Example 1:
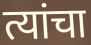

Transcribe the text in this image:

त्यांचा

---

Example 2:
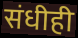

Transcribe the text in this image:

संधीही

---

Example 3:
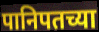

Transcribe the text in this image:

पानिपतच्या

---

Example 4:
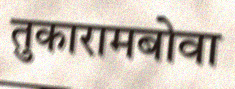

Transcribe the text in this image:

तुकारामबोवा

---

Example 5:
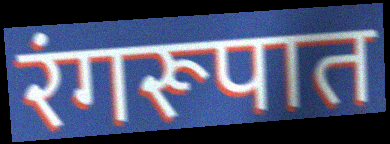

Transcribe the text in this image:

रंगरूपात